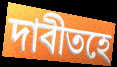
দাবীতহে